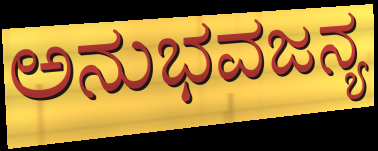
ಅನುಭವಜನ್ಯ